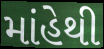
માંહેથી